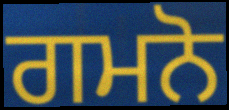
ਗਮਨੋ